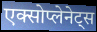
एक्सोप्लेनेट्स